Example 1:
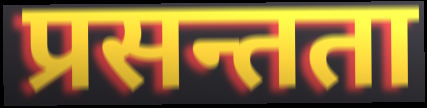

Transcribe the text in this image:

प्रसन्तता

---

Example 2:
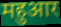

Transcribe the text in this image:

महुआर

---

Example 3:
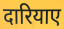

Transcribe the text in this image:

दारियाए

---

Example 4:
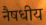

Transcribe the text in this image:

नैषधीय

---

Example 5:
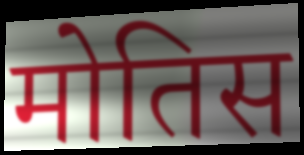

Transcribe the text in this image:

मोतिस